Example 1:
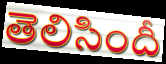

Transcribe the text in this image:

తెలిసిందీ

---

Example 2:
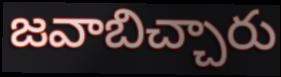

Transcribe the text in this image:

జవాబిచ్చారు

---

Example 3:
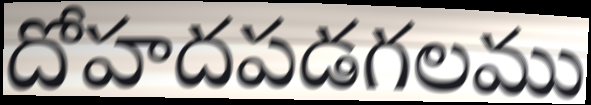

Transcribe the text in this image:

దోహదపడగలము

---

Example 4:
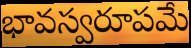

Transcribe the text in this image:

భావస్వరూపమే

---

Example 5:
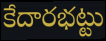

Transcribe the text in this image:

కేదారభట్టు